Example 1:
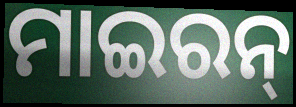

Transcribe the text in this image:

ମାଇରନ୍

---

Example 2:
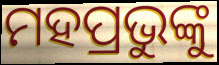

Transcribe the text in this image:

ମହପ୍ରଭୁଙ୍କୁ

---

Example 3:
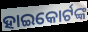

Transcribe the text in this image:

ହାଇକୋର୍ଟଙ୍କ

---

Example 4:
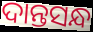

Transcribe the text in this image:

ଦାନ୍ତସନ୍ଧ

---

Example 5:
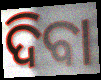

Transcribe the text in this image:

ଦିବା